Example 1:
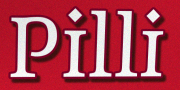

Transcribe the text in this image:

Pilli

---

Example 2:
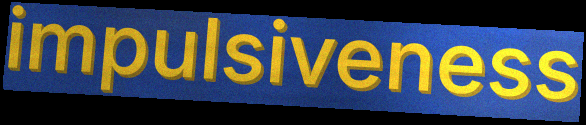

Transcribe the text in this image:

impulsiveness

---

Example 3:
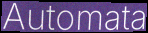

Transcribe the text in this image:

Automata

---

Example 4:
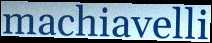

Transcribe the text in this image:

machiavelli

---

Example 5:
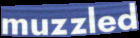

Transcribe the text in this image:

muzzled